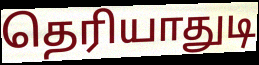
தெரியாதுடி